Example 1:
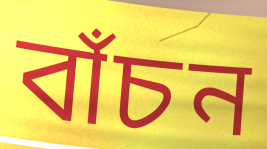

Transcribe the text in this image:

বাঁচন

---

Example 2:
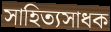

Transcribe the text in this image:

সাহিত্যসাধক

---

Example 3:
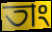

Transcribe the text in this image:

তাং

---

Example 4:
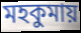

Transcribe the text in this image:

মহকুমায়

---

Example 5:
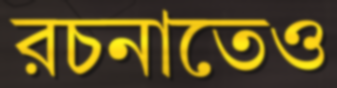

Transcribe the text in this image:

রচনাতেও